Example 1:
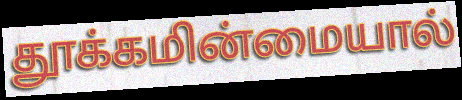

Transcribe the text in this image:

தூக்கமின்மையால்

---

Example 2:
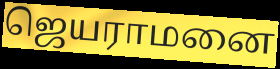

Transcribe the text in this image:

ஜெயராமனை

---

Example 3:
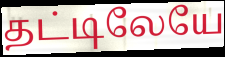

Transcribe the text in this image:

தட்டிலேயே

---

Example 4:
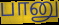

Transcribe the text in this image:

பானு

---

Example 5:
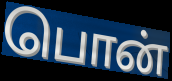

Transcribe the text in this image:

பொன்